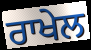
ਰਾਖੇਲ